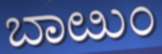
ಬಾೞುಂ